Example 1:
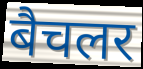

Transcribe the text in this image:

बैचलर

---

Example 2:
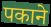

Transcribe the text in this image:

पकाने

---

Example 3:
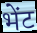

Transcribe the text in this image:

भेंट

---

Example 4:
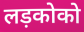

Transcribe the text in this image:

लड़कोको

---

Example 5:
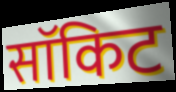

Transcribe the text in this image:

सॉकिट